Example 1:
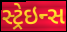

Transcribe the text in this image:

સ્ટ્રેઇન્સ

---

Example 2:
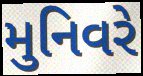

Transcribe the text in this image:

મુનિવરે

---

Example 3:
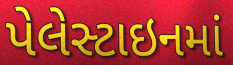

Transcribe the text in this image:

પેલેસ્ટાઇનમાં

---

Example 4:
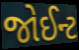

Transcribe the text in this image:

જોઈન્ટ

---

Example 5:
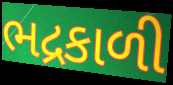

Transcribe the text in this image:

ભદ્રકાળી